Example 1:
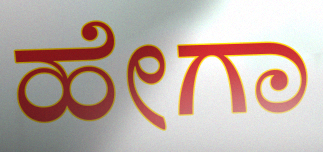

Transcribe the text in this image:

ಹೇಗಾ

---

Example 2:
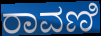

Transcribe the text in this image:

ರಾವಣಿ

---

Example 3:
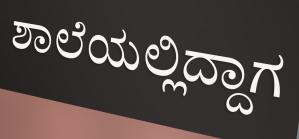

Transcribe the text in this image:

ಶಾಲೆಯಲ್ಲಿದ್ದಾಗ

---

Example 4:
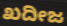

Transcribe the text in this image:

ಖದೀಜ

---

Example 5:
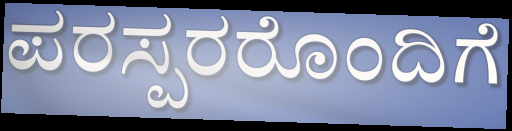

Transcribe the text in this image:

ಪರಸ್ಪರರೊಂದಿಗೆ